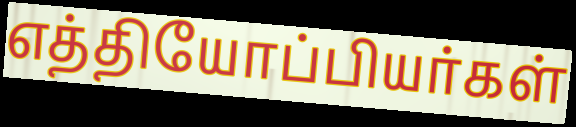
எத்தியோப்பியர்கள்